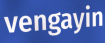
vengayin